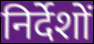
निर्देशों